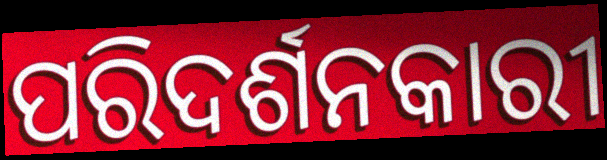
ପରିଦର୍ଶନକାରୀ